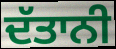
ਦੱਤਾਨੀ